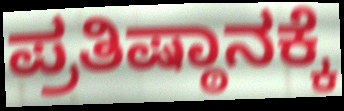
ಪ್ರತಿಷ್ಠಾನಕ್ಕೆ